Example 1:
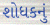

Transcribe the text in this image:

શોધકનું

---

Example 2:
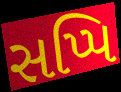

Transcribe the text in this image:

સપ્પિ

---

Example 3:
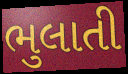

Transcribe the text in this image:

ભુલાતી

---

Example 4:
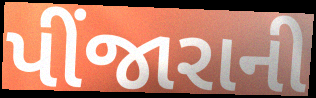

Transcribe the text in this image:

પીંજારાની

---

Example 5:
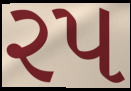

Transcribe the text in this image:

રપ